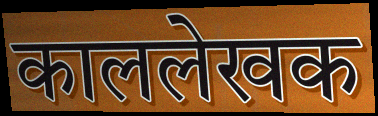
काललेखक